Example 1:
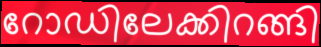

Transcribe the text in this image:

റോഡിലേക്കിറങ്ങി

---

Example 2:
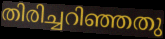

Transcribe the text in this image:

തിരിച്ചറിഞ്ഞതു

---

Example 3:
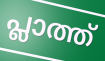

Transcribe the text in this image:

പ്ലാത്ത്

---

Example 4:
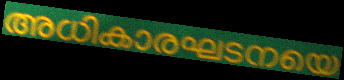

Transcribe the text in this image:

അധികാരഘടനയെ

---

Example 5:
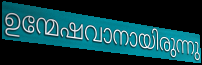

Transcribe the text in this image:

ഉന്മേഷവാനായിരുന്നു